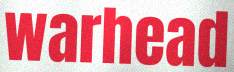
warhead